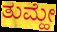
ತುಮ್ಹೇ